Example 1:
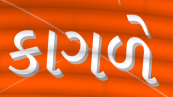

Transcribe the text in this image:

કાગળે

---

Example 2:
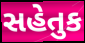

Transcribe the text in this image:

સહેતુક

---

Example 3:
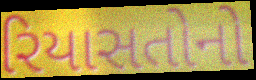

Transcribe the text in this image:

રિયાસતોનો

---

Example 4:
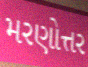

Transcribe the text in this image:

મરણોત્તર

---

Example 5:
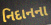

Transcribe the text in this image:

નિદાનના